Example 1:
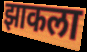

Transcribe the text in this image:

झाकला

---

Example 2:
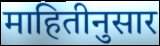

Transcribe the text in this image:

माहितीनुसार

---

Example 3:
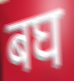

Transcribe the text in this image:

बघ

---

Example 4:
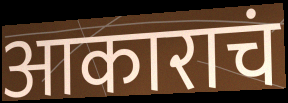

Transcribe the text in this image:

आकाराचं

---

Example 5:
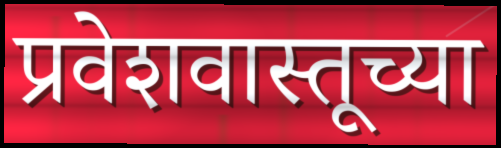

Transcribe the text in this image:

प्रवेशवास्तूच्या